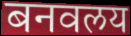
बनवलय